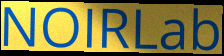
NOIRLab